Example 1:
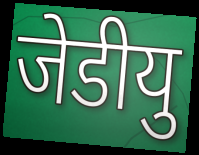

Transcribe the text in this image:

जेडीयु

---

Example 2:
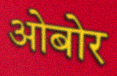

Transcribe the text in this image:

ओबोर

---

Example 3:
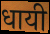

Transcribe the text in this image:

धायी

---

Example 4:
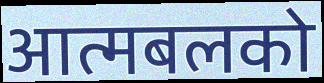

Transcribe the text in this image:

आत्मबलको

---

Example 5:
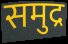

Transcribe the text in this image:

समुद्र